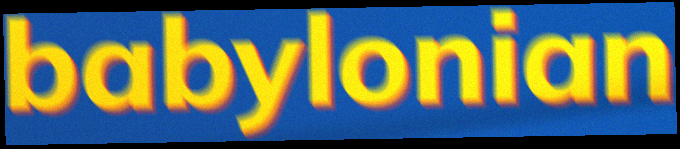
babylonian